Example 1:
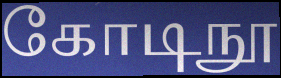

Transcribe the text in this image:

கோடிநூ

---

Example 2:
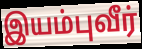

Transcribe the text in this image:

இயம்புவீர்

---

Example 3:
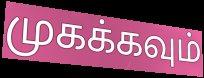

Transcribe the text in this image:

முகக்கவும்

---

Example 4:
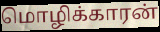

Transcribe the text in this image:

மொழிக்காரன்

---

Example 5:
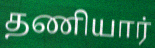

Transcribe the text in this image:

தணியார்